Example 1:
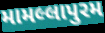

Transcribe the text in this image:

મામલ્લાપુરમ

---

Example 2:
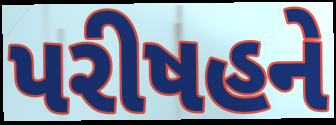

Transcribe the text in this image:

પરીષહને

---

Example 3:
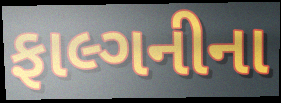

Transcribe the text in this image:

ફાલ્ગનીના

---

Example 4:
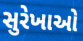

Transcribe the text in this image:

સુરેખાઓ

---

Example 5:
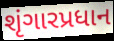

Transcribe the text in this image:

શૃંગારપ્રધાન